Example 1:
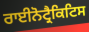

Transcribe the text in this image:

ਰਾਈਨੋਟ੍ਰੈਕਿਟਿਸ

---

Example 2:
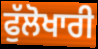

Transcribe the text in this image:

ਫੁੱਲੋਖਾਰੀ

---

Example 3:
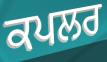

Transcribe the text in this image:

ਕਪਲਰ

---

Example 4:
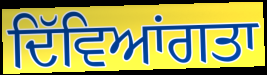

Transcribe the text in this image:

ਦਿੱਵਿਆਂਗਤਾ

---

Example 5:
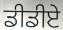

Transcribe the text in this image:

ਡੀਡੀਏ